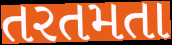
તરતમતા